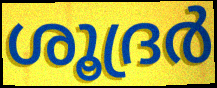
ശൂദ്രർ